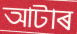
আটাৰ